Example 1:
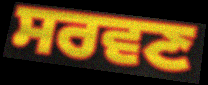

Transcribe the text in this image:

ਸਰਵਣ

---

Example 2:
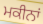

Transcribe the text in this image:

ਮਕੀਨਾਂ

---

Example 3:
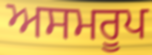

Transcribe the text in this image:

ਅਸਮਰੂਪ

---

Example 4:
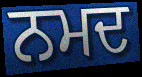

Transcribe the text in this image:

ਨਮਦ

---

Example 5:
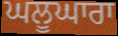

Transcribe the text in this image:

ਘਲੂਘਾਰਾ